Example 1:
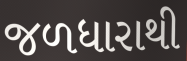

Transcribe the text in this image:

જળધારાથી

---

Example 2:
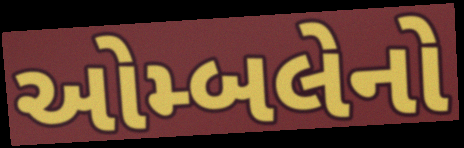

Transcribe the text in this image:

ઓમ્બલેનો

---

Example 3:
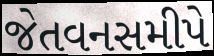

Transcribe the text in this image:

જેતવનસમીપે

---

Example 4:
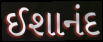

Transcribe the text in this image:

ઈશાનંદ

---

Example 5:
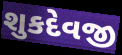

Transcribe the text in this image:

શુકદેવજી